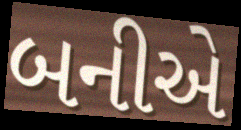
બનીએ